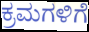
ಕ್ರಮಗಳಿಗೆ